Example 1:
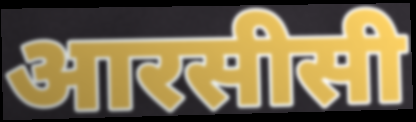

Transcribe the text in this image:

आरसीसी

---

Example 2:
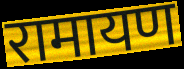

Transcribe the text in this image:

रामायण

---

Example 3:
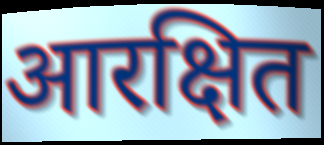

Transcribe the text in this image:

आरक्षित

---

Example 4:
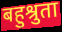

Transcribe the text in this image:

बहुश्रुता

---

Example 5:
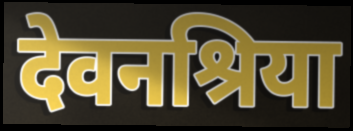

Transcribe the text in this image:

देवनश्रिया